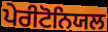
ਪੇਰੀਟੋਨਿਯਲ